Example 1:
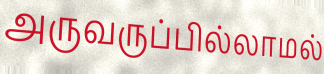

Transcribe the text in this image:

அருவருப்பில்லாமல்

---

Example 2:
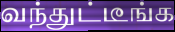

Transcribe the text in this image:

வந்துட்டீங்க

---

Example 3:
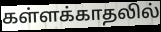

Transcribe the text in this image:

கள்ளக்காதலில்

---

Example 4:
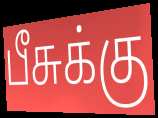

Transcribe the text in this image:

பீசுக்கு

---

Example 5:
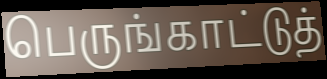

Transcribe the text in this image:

பெருங்காட்டுத்